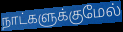
நாட்களுக்குமேல்